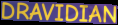
DRAVIDIAN